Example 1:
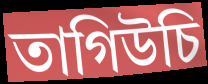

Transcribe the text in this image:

তাগিউচি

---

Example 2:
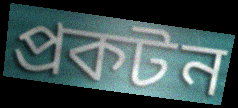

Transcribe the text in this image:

প্রকটন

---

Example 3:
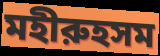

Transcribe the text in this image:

মহীরুহসম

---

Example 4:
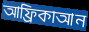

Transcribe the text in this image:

আফ্রিকাআন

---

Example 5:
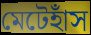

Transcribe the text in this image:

মেটেহাঁস